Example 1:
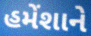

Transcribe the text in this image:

હમેંશાને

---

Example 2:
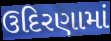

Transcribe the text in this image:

ઉદિરણામાં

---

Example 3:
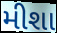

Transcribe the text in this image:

મીશા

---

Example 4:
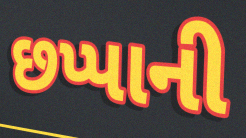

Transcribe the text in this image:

છપ્પાની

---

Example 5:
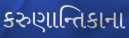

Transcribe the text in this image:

કરુણાન્તિકાના